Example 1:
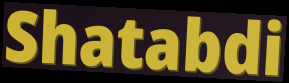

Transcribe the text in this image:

Shatabdi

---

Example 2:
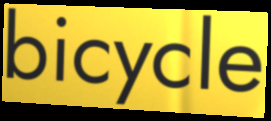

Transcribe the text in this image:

bicycle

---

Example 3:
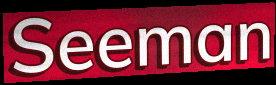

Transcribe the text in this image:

Seeman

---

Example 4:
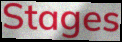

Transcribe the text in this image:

Stages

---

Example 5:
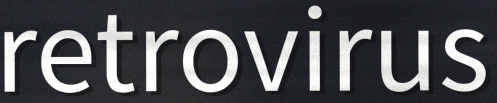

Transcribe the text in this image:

retrovirus